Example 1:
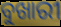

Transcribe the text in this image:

ବୁଖାରୀ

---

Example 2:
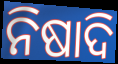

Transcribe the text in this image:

ନିଷାଦି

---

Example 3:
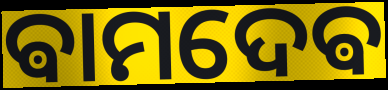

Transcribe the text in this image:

ଵାମଦେଵ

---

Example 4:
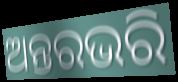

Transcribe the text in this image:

ଅନ୍ତରଭରି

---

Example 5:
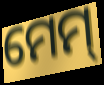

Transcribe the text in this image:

ମେମ୍